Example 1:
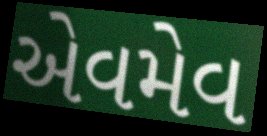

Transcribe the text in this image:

એવમેવ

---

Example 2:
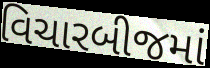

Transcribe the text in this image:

વિચારબીજમાં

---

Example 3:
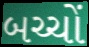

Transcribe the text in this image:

બચ્ચોં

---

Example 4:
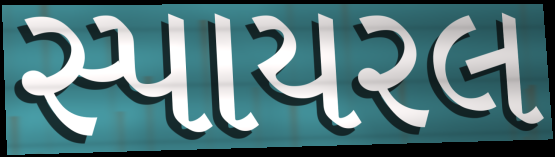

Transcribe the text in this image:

સ્પાયરલ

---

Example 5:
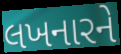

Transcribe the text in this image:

લખનારને